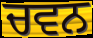
ਚਵਨ